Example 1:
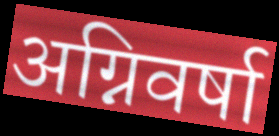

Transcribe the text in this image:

अग्निवर्षा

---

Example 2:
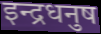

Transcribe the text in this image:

इन्द्रधनुष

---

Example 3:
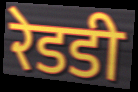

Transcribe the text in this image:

रेडडी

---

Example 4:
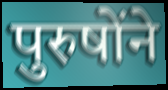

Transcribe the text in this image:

पुरुषोंने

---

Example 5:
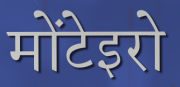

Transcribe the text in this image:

मोंटेइरो